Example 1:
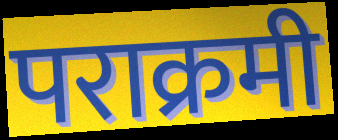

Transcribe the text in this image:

पराक्रमी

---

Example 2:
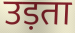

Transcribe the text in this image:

उड़ता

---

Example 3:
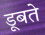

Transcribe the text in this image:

डूबते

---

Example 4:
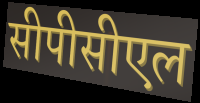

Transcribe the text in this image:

सीपीसीएल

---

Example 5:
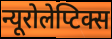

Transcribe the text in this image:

न्यूरोलेप्टिक्स